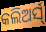
କଲିଅର୍ସ୍